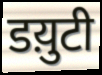
डय़ुटी